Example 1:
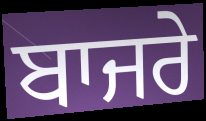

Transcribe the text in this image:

ਬਾਜਰੇ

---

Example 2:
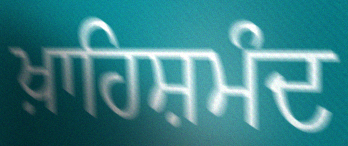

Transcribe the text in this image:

ਖ਼ਾਹਿਸ਼ਮੰਦ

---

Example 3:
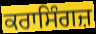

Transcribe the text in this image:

ਕਰਾਸਿੰਗਜ਼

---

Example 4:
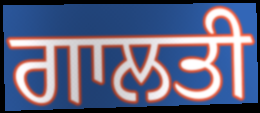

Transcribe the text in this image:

ਗਾਲਤੀ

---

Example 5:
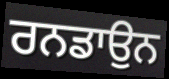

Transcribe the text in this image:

ਰਨਡਾਉਨ